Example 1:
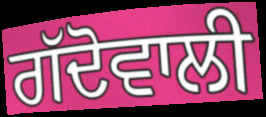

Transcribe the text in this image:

ਗੱਦੋਵਾਲੀ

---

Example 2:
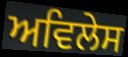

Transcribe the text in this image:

ਅਵਿਲੇਸ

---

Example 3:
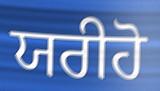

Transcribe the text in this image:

ਯਰੀਹੋ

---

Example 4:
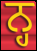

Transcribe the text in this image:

ਨ੍ਹ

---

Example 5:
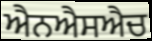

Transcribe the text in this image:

ਐਨਐਸਐਚ